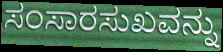
ಸಂಸಾರಸುಖವನ್ನು